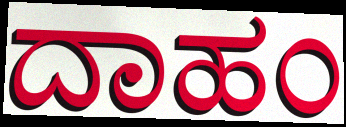
ದಾಹಂ